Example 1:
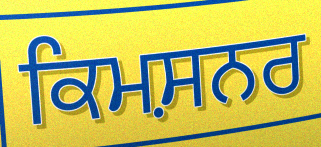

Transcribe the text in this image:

ਕਿਮ਼ਸਨਰ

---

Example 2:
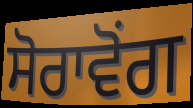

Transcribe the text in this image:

ਸੋਰਾਵੋਂਗ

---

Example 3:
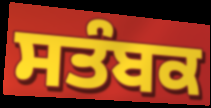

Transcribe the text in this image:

ਸਤੰਬਕ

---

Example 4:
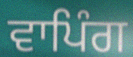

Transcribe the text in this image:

ਵਾਪਿੰਗ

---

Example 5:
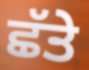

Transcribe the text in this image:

ਛੱਤੇ